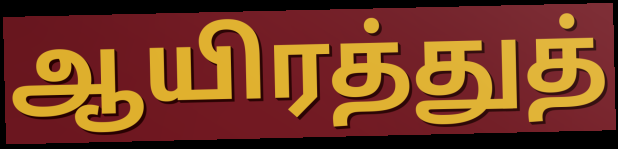
ஆயிரத்துத்